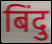
बिंदु